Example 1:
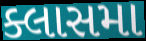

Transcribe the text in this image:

ક્લાસમા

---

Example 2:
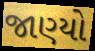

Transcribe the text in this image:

જાણ્યો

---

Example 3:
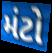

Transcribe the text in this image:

મંટો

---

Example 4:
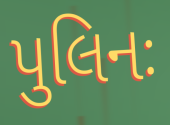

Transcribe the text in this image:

પુલિનઃ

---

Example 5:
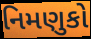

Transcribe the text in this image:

નિમણુકો